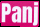
Panj